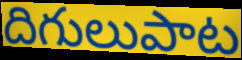
దిగులుపాట